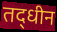
तद्धीन